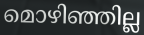
മൊഴിഞ്ഞില്ല